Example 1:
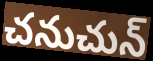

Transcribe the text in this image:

చనుచున్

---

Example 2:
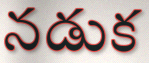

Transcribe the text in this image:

నడుక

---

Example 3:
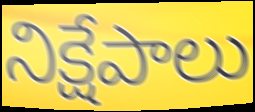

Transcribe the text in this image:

నిక్షేపాలు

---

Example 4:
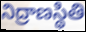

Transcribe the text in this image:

నిద్రాణస్థితి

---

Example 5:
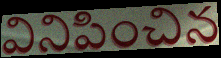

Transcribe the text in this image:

వినిపించిన